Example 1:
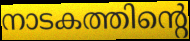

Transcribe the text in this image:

നാടകത്തിന്റെ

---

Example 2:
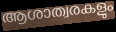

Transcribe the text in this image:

ആശാത്വരകളും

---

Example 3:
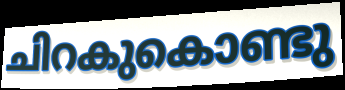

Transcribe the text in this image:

ചിറകുകൊണ്ടു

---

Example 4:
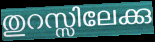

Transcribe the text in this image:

തുറസ്സിലേക്കു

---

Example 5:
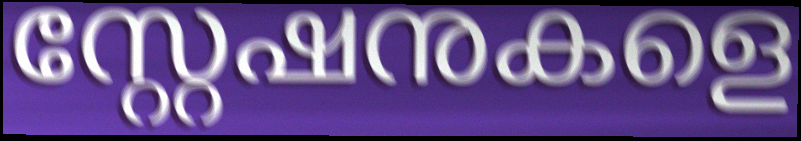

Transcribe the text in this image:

സ്റ്റേഷനുകളെ